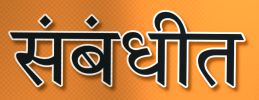
संबंधीत